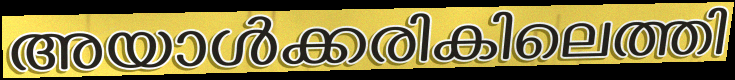
അയാൾക്കരികിലെത്തി